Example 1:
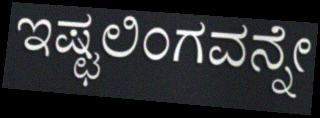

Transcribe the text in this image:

ಇಷ್ಟಲಿಂಗವನ್ನೇ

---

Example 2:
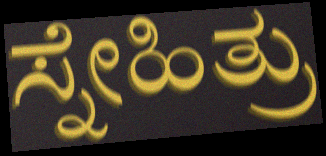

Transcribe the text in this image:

ಸ್ನೇಹಿತ್ರು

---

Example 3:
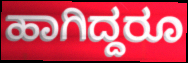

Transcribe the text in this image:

ಹಾಗಿದ್ದರೂ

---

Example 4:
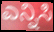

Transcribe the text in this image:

ಎನ್ನಿಸಿ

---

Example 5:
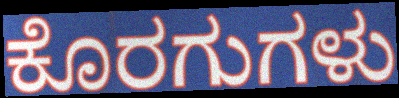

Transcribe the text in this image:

ಕೊರಗುಗಳು